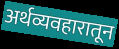
अर्थव्यवहारातून